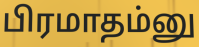
பிரமாதம்னு